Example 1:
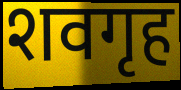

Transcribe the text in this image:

शवगृह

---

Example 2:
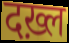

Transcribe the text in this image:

दख़्ल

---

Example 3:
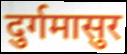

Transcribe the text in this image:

दुर्गमासुर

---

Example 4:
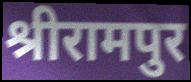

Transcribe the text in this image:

श्रीरामपुर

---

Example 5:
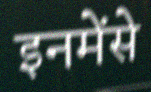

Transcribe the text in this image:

इनमेंसे